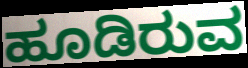
ಹೂಡಿರುವ